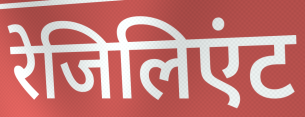
रेजिलिएंट